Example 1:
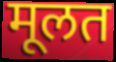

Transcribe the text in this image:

मूलत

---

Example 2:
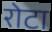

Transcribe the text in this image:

रोटा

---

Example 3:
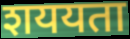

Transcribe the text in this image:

शययता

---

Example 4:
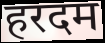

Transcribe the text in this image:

हरदम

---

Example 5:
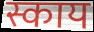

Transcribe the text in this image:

स्काय